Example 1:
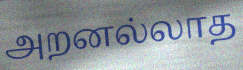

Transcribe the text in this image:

அறனல்லாத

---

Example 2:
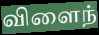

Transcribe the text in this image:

விளைந்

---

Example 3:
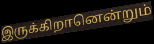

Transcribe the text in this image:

இருக்கிறானென்றும்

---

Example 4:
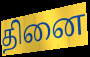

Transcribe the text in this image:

தினை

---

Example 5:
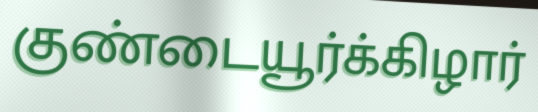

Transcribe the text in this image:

குண்டையூர்க்கிழார்